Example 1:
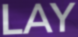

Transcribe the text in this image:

LAY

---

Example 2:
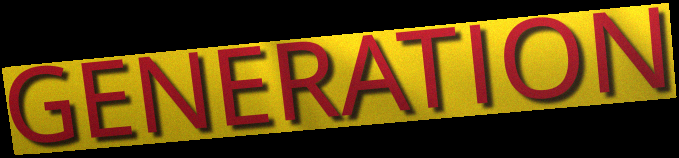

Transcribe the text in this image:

GENERATION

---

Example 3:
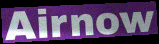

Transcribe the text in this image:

Airnow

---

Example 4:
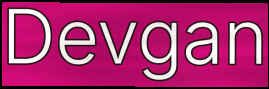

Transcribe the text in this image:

Devgan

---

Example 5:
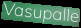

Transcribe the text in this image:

Vasupalle